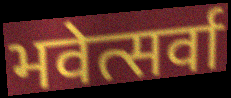
भवेत्सर्वा